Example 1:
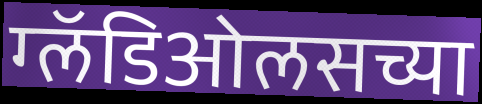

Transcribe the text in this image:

ग्लॅडिओलसच्या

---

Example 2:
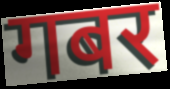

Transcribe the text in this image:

गबर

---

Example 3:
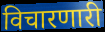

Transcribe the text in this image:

विचारणारी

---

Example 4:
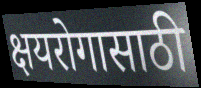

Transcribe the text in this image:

क्षयरोगासाठी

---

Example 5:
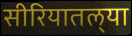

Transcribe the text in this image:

सीरियातल्या